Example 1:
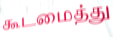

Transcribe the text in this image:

கூடமைத்து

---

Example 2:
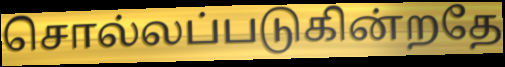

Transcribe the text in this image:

சொல்லப்படுகின்றதே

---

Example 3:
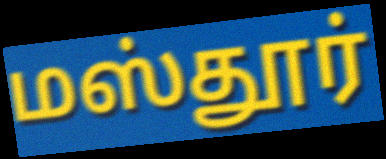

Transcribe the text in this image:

மஸ்தூர்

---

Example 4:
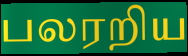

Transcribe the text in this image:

பலரறிய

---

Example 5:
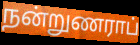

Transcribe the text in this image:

நன்றுணராப்